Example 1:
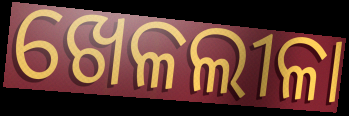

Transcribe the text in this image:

ଖେଳଲୀଳା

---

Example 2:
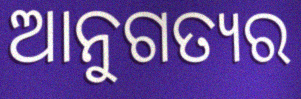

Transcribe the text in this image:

ଆନୁଗତ୍ୟର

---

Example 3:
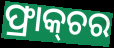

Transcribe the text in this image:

ଫ୍ରାକ୍‌ଚର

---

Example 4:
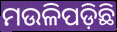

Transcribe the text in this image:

ମଉଳିପଡ଼ିଛି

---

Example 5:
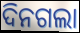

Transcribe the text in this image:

ଦିନଗଲା